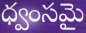
ధ్వంసమై